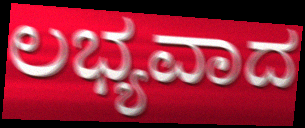
ಲಭ್ಯವಾದ